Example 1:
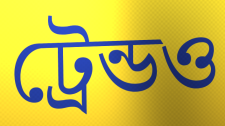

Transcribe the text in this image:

ট্রেন্ডও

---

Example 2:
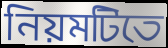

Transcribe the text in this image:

নিয়মটিতে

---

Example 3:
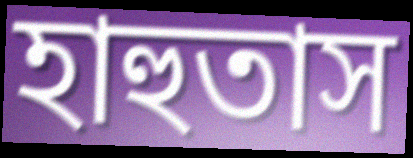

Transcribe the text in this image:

হাহুতাস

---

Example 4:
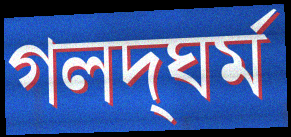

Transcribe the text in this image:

গলদ্‌ঘর্ম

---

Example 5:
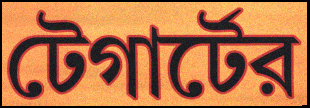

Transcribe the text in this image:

টেগার্টের